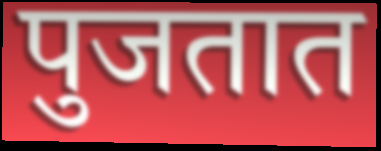
पुजतात